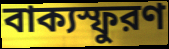
বাক্যস্ফুরণ